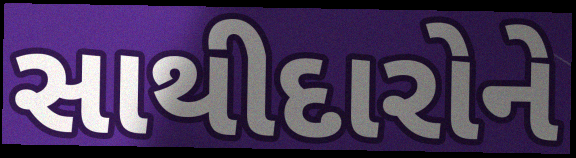
સાથીદારોને